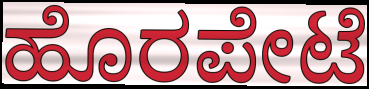
ಹೊರಪೇಟೆ